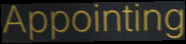
Appointing